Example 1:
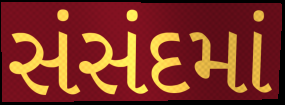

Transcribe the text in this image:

સંસંદમાં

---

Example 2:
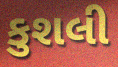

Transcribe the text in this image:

કુશલી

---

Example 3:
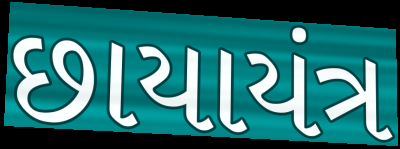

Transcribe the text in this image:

છાયાયંત્ર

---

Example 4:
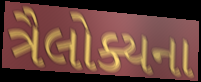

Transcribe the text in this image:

ત્રૈલોક્યના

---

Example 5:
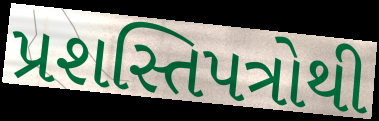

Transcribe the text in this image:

પ્રશસ્તિપત્રોથી